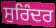
ਸੁਰਿੰਦਰ